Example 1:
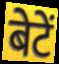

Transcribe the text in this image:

बेटें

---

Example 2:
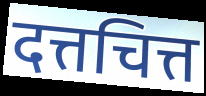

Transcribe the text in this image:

दत्तचित्त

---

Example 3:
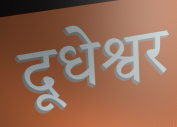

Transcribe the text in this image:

दूधेश्वर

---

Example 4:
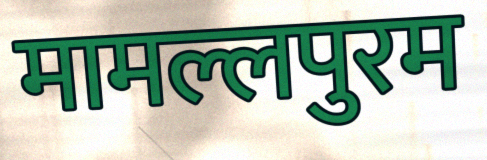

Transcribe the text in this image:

मामल्लपुरम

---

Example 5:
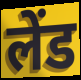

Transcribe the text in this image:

लेंड